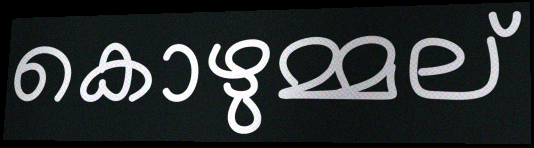
കൊഴുമ്മല്